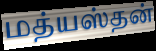
மத்யஸ்தன்